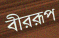
বীররূপ